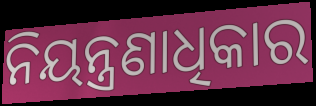
ନିୟନ୍ତ୍ରଣାଧିକାର